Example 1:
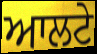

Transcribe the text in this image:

ਆਲਟੇ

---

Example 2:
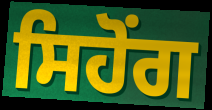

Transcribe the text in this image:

ਸਿਹੋਂਗ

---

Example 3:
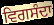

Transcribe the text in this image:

ਵਿਗਸੰਦਾ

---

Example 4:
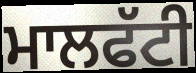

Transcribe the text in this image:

ਮਾਲਫੱਟੀ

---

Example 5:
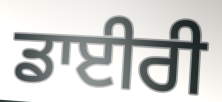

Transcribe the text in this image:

ਡਾਈਰੀ